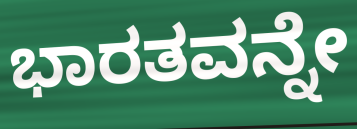
ಭಾರತವನ್ನೇ